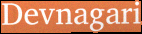
Devnagari